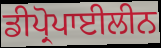
ਡੀਪ੍ਰੋਪਾਈਲੀਨ